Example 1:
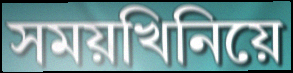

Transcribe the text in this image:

সময়খিনিয়ে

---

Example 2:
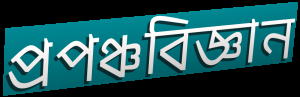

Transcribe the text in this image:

প্ৰপঞ্চবিজ্ঞান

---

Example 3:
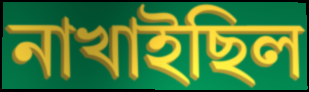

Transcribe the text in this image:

নাখাইছিল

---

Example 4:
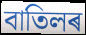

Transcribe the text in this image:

বাতিলৰ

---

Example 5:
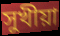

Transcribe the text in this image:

সুখীয়া